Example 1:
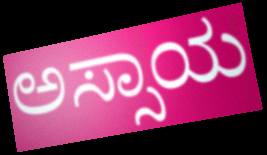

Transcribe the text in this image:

ಅಸ್ಸಾಯ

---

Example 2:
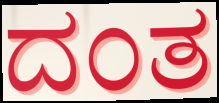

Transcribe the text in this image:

ದಂತ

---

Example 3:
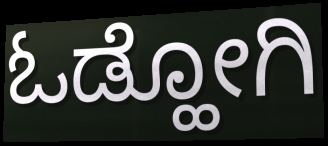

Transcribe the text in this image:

ಓಡ್ಹೋಗಿ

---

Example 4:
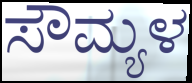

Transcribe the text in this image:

ಸೌಮ್ಯಳ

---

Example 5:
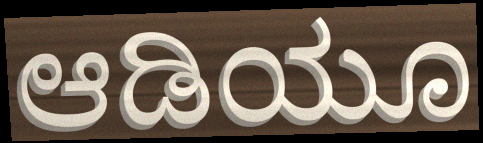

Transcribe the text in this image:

ಆಡಿಯೂ